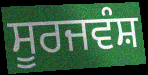
ਸੂਰਜਵੰਸ਼